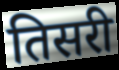
तिसरी